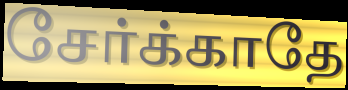
சேர்க்காதே